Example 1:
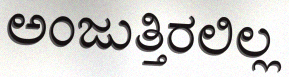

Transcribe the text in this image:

ಅಂಜುತ್ತಿರಲಿಲ್ಲ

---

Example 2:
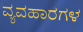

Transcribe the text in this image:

ವ್ಯವಹಾರಗಳ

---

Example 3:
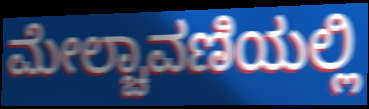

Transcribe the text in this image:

ಮೇಲ್ಚಾವಣಿಯಲ್ಲಿ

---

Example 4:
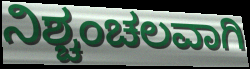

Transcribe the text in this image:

ನಿಶ್ಚಂಚಲವಾಗಿ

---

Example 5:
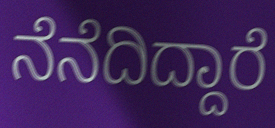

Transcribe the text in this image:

ನೆನೆದಿದ್ದಾರೆ